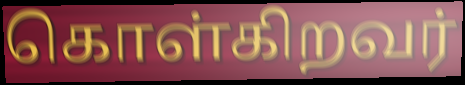
கொள்கிறவர்